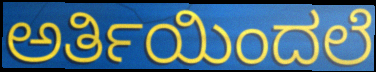
ಅರ್ತಿಯಿಂದಲೆ